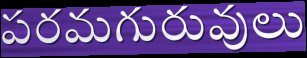
పరమగురువులు